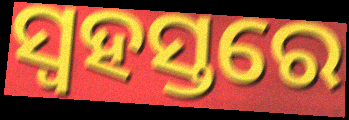
ସ୍ୱହସ୍ତରେ